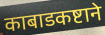
काबाडकष्टाने